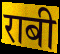
राबी